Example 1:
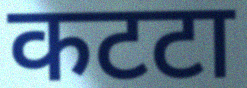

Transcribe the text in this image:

कटटा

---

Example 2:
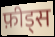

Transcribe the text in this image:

फ़ीड्स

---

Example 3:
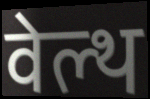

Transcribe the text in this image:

वेल्‍थ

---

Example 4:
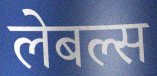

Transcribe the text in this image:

लेबल्स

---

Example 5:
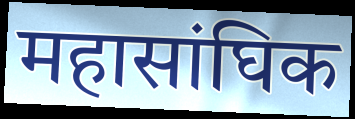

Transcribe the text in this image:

महासांघिक